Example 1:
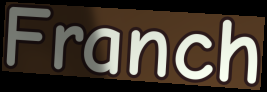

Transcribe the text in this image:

Franch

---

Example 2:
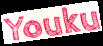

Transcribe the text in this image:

Youku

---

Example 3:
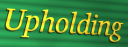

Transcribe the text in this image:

Upholding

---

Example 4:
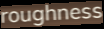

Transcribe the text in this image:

roughness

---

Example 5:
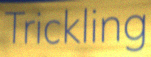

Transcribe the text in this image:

Trickling